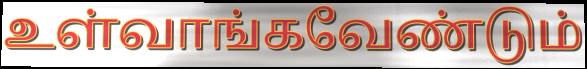
உள்வாங்கவேண்டும்